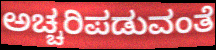
ಅಚ್ಚರಿಪಡುವಂತೆ